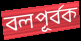
বলপূৰ্বক